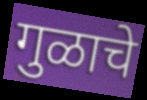
गुळाचे